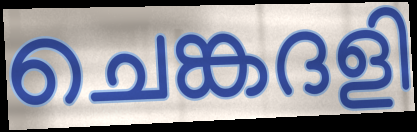
ചെങ്കദളി